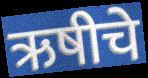
ऋषीचे